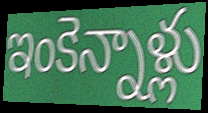
ఇంకెన్నాళ్లు